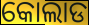
କୋଲାଡ